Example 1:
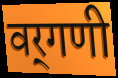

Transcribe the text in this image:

वर्गणी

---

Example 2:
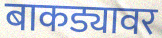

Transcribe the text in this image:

बाकड्यावर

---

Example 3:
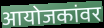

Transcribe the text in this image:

आयोजकांवर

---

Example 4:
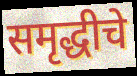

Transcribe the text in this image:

समृद्धीचे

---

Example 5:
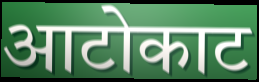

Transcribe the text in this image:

आटोकाट